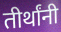
तीर्थांनी